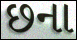
છના